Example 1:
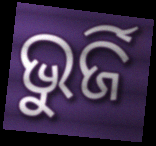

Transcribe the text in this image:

ଭୁର୍ଜି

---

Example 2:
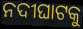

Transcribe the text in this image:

ନଦୀଘାଟକୁ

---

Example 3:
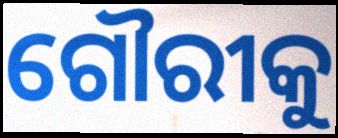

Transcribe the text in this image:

ଗୌରୀକୁ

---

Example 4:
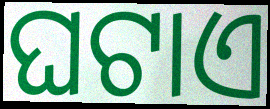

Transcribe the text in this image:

ଘଟାଏ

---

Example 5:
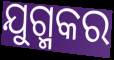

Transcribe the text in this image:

ଯୁଗ୍ମକର